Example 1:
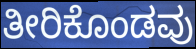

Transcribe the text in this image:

ತೀರಿಕೊಂಡವು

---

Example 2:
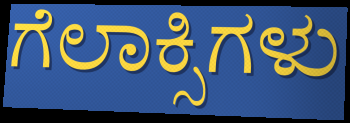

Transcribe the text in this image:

ಗೆಲಾಕ್ಸಿಗಳು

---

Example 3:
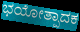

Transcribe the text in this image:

ಭಯೋತ್ಪಾದಕ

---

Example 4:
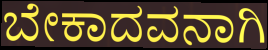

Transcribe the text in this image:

ಬೇಕಾದವನಾಗಿ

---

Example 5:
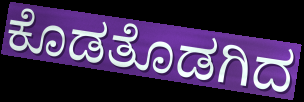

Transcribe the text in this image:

ಕೊಡತೊಡಗಿದ